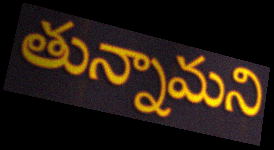
తున్నామని